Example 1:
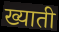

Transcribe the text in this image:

ख्याती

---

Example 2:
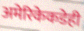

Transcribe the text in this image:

अमेरिकेकडेही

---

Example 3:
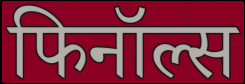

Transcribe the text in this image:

फिनॉल्स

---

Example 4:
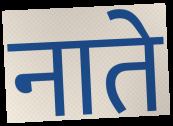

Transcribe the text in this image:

नाते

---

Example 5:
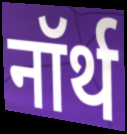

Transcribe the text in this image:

नॉर्थ